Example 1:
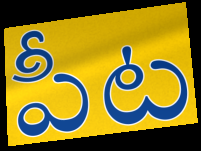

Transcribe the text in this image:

పీట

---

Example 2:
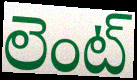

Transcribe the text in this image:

లెంట్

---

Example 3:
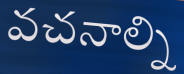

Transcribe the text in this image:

వచనాల్ని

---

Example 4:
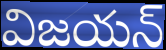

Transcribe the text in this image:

విజయన్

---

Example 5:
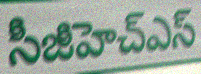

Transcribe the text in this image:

సీజీహెచ్ఎస్